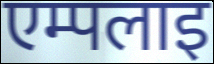
एम्पलाइ